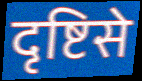
दृष्टिसे